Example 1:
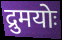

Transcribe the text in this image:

द्रुमयोः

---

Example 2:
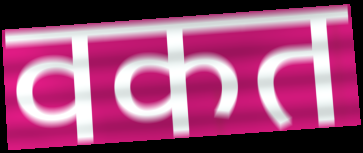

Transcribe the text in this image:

वकत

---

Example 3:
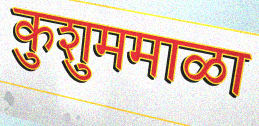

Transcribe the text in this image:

कुशुममाळा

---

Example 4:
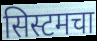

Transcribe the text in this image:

सिस्टमचा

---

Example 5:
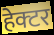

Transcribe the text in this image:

हेक्‍टर